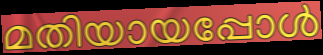
മതിയായപ്പോൾ